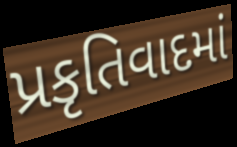
પ્રકૃતિવાદમાં